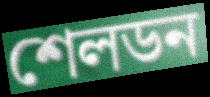
শেলডন